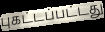
புகட்டப்பட்டது